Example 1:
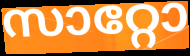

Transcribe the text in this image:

സാറ്റോ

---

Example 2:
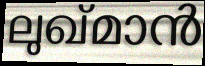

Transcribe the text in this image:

ലുഖ്മാൻ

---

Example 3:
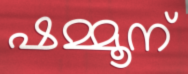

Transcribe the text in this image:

ഷമ്മൂന്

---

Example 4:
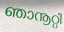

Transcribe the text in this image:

ഞാനൂറ്റി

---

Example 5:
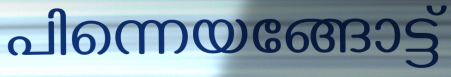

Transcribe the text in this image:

പിന്നെയങ്ങോട്ട്